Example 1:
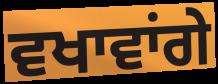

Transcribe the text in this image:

ਵਖਾਵਾਂਗੇ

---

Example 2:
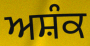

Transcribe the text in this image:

ਅਸ਼ੰਕ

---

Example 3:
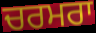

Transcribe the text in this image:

ਚਰਮਰਾ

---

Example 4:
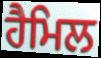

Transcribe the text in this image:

ਹੈਮਿਲ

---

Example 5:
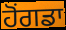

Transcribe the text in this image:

ਹੋਂਗਡਾ